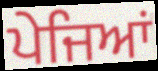
ਪੇਜਿਆਂ